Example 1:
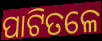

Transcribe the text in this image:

ପାଟିତଳେ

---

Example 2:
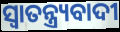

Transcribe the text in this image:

ସ୍ୱାତନ୍ତ୍ର୍ୟବାଦୀ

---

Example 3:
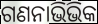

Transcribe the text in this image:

ଗଣନାଭିଭିକ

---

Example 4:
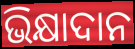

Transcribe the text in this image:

ଭିକ୍ଷାଦାନ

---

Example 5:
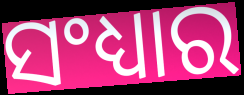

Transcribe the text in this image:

ସଂଧ୍ୟାର